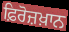
ਫ਼ਿਰੋਜ਼ਖ਼ਾਨ